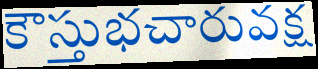
కౌస్తుభచారువక్ష